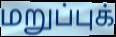
மறுப்புக்